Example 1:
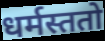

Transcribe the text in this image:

धर्मस्ततो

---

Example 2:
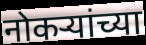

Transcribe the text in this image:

नोकऱ्यांच्या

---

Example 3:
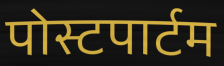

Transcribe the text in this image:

पोस्टपार्टम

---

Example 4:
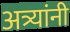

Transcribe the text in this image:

अत्र्यांनी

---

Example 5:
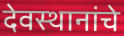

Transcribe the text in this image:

देवस्थानांचे